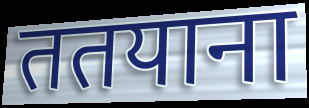
ततयाना